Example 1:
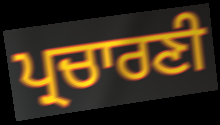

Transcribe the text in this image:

ਪ੍ਰਚਾਰਣੀ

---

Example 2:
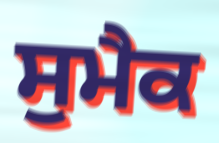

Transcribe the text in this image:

ਸੁਮੈਕ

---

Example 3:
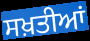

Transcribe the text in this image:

ਸਖ਼ਤੀਆਂ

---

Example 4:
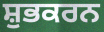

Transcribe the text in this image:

ਸ਼ੁਭਕਰਨ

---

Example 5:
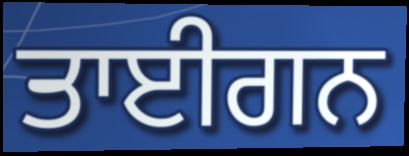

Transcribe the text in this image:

ਤਾਈਗਨ